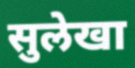
सुलेखा